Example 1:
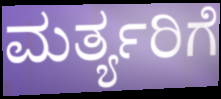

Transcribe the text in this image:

ಮರ್ತ್ಯರಿಗೆ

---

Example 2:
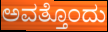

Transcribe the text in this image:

ಅವತ್ತೊಂದು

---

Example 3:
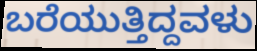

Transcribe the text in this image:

ಬರೆಯುತ್ತಿದ್ದವಳು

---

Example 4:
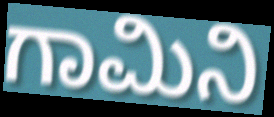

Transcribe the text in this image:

ಗಾಮಿನಿ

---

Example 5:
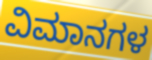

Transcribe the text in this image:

ವಿಮಾನಗಳ